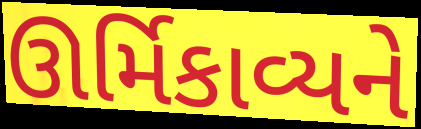
ઊર્મિકાવ્યને